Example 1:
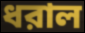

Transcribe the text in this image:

ধরাল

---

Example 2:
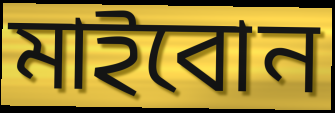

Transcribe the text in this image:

মাইবোন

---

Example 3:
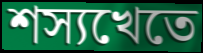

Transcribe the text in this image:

শস্যখেতে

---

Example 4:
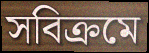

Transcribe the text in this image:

সবিক্রমে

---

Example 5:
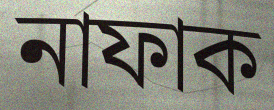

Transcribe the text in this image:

নাফাক